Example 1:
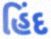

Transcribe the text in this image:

હિંદ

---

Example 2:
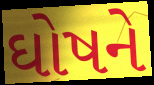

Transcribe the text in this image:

ઘોષને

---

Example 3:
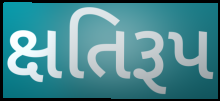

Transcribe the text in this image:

ક્ષતિરૂપ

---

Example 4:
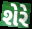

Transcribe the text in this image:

શેરે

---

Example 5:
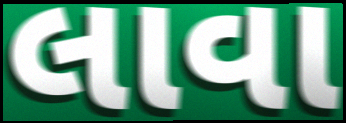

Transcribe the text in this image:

લાવા